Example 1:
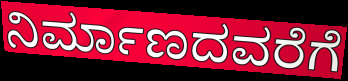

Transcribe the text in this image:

ನಿರ್ಮಾಣದವರೆಗೆ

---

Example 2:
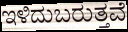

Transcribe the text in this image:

ಇಳಿದುಬರುತ್ತವೆ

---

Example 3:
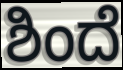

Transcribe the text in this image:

ಶಿಂದೆ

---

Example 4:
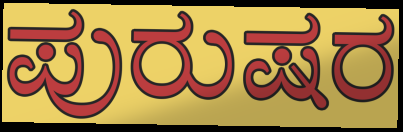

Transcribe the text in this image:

ಪುರುಷರ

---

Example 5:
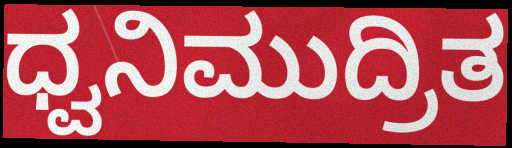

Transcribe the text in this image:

ಧ್ವನಿಮುದ್ರಿತ